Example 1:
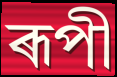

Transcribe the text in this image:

ৰূপী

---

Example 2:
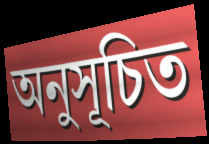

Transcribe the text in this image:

অনুসূচিত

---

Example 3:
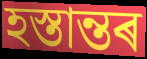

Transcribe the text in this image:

হস্তান্তৰ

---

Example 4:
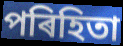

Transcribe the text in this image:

পৰিহিতা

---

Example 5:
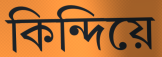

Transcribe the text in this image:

কিন্দিয়ে